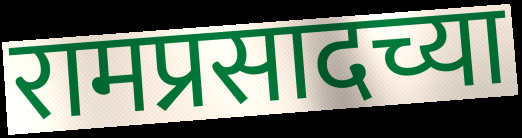
रामप्रसादच्या